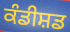
ਕੰਡੀਸ਼ਡ